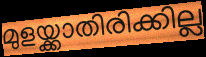
മുളയ്ക്കാതിരിക്കില്ല